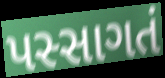
પસ્સાગતં